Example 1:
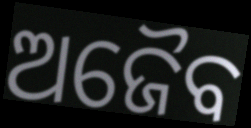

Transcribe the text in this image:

ଅଜୈବ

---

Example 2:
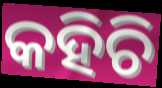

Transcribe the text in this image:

କହିଚି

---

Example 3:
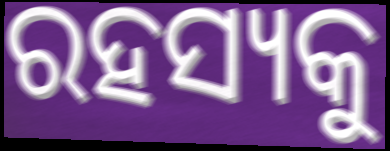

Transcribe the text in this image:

ରହସ୍ୟକୁ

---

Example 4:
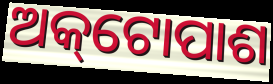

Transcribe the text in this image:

ଅକ୍‌ଟୋପାଶ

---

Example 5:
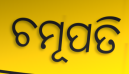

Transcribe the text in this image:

ଚମୂପତି